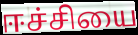
ஈச்சியை